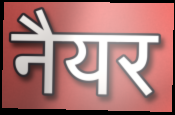
नैयर